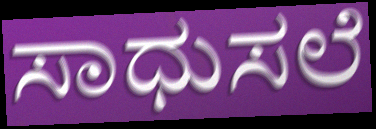
ಸಾಧುಸಲೆ